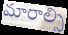
మారాల్సి